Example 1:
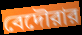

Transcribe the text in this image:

বেদৌরার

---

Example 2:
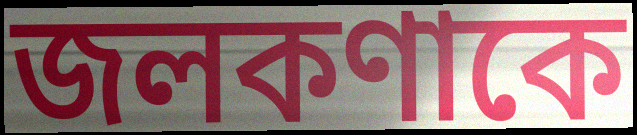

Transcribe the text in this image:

জলকণাকে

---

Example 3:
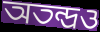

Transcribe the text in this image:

অতন্দ্রও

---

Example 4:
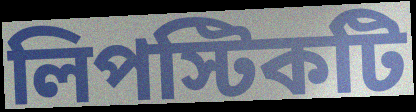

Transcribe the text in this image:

লিপস্টিকটি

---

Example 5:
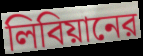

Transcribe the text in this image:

লিবিয়ানের